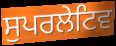
ਸੁਪਰਲੇਟਿਵ